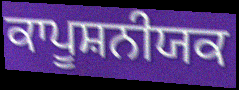
ਕਾਪੂਸ਼ਨੀਯਕ